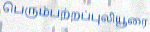
பெரும்பற்றப்புலியூரை